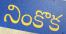
నింకొక